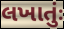
લખાતુંઃ